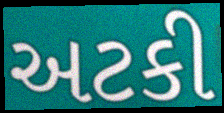
અટકી